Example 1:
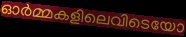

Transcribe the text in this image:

ഓർമ്മകളിലെവിടെയോ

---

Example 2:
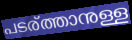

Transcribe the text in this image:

പടര്ത്താനുള്ള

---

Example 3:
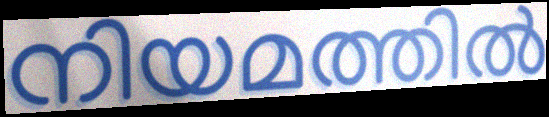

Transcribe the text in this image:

നിയമത്തിൽ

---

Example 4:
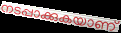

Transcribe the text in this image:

നടപ്പാക്കുകയാണ്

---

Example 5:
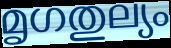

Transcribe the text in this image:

മൃഗതുല്യം